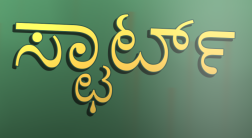
ಸ್ಟಾರ್ಟ್